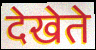
देखेते